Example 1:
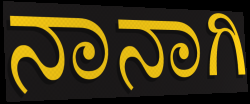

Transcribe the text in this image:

ನಾನಾಗಿ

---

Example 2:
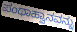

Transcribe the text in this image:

ಪಂಥಾಹ್ವಾನವನ್ನು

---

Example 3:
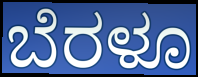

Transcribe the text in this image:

ಬೆರಳೂ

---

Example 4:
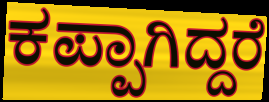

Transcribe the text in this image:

ಕಪ್ಪಾಗಿದ್ದರೆ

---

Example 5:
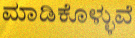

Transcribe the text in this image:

ಮಾಡಿಕೊಳ್ಳುವೆ